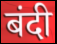
बंदी